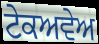
ਟੇਕਅਵੇਅ